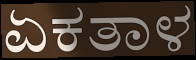
ಏಕತಾಳ